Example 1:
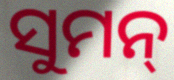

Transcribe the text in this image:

ସୁମନ୍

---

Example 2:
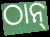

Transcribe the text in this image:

ଠାନ୍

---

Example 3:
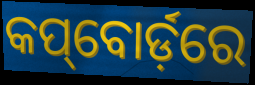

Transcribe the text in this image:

କପ୍‌ବୋର୍ଡ଼ରେ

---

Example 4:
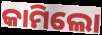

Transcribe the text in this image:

କାମିଲୋ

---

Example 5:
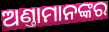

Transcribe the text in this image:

ଅଣ୍ତାମାନଙ୍କର